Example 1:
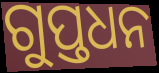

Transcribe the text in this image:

ଗୁପ୍ତଧନ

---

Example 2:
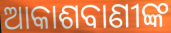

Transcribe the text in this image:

ଆକାଶବାଣୀଙ୍କ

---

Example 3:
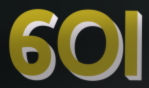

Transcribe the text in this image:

ଠୋ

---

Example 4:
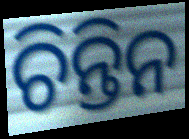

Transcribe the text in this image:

ଚିନ୍ତିନ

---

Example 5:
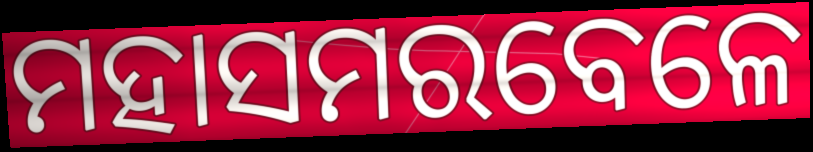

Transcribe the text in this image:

ମହାସମରବେଳେ